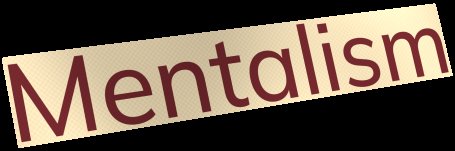
Mentalism